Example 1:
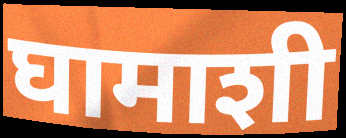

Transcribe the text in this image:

घामाशी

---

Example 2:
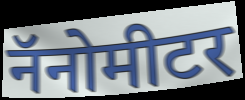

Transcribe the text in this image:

नॅनोमीटर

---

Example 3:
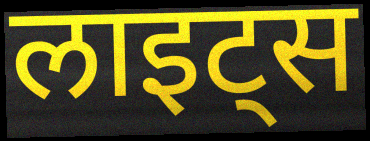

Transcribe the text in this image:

लाइट्स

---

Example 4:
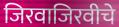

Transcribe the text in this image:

जिरवाजिरवीचे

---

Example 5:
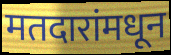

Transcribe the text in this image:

मतदारांमधून